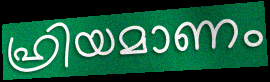
ഹ്രിയമാണം